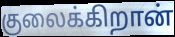
குலைக்கிறான்